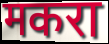
मकरा